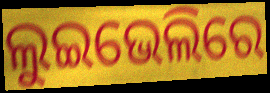
ଲୁଇଭେଲିରେ